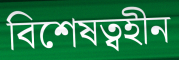
বিশেষত্বহীন